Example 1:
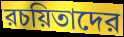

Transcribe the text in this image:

রচয়িতাদের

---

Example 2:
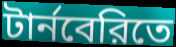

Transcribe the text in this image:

টার্নবেরিতে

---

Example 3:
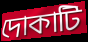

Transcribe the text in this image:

দোকাটি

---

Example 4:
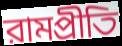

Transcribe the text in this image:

রামপ্রীতি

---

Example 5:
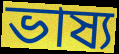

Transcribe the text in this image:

ভাষ্য